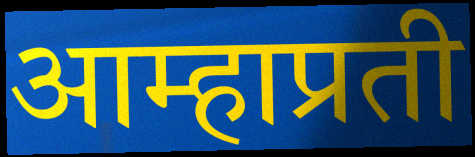
आम्हाप्रती